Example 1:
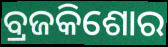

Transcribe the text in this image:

ବ୍ରଜକିଶୋର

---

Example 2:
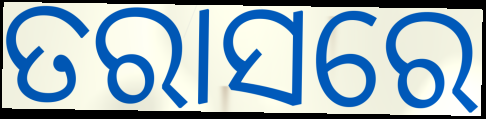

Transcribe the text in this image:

ତରାସରେ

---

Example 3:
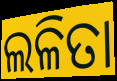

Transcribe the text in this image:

ଲଳିତା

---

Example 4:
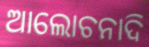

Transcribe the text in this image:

ଆଲୋଚନାଦି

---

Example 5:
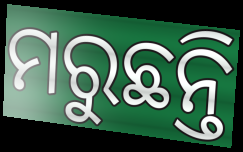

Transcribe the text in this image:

ମରୁଛନ୍ତି